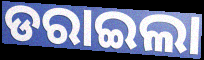
ଡରାଇଲା